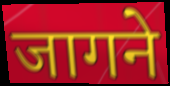
जागने